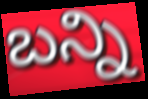
బన్ని